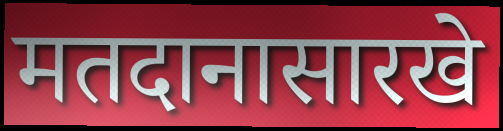
मतदानासारखे